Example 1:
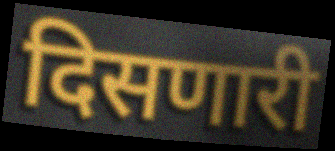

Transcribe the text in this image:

दिसणारी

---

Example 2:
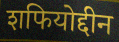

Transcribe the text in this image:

शफियोद्दीन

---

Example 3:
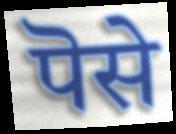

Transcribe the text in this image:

पॆसे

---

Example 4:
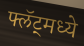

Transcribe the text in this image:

फ्लॅट्मध्ये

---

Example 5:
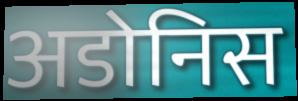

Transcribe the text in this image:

अडोनिस